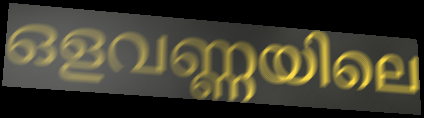
ഒളവണ്ണയിലെ